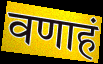
वणाहं